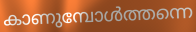
കാണുമ്പോൾത്തന്നെ